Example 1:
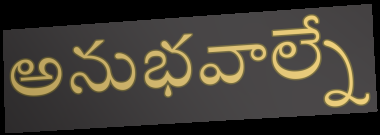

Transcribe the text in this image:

అనుభవాల్నే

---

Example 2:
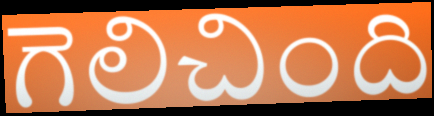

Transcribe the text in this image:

గెలిచింది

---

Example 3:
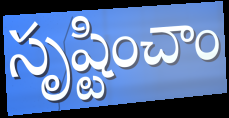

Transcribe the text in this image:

సృష్టించాం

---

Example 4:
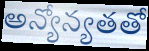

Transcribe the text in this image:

అన్యోన్యతతో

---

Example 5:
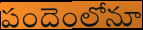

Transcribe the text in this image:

పందెంలోనూ